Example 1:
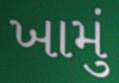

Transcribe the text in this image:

ખામું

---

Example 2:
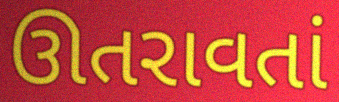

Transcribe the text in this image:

ઊતરાવતાં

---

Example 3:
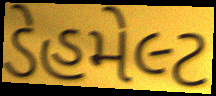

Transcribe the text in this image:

ડેહમેલ્ટ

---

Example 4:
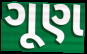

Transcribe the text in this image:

ગૂણ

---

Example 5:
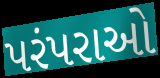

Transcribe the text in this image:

પરંપરાઓ